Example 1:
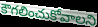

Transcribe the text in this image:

కౌగలించుకోవాలని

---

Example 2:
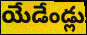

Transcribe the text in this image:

యేడేండ్లు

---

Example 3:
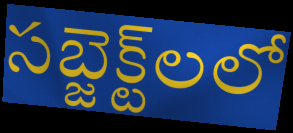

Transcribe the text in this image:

సబ్జెక్ట్‌లలో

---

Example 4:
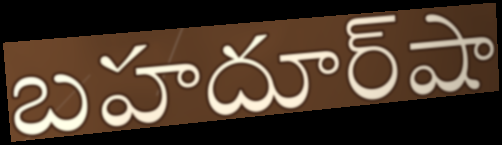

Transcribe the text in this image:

బహదూర్‌షా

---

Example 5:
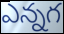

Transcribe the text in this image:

ఎన్నగ